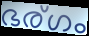
ഭര്ഗം